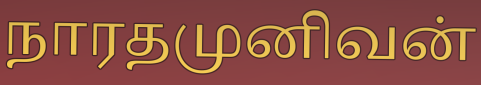
நாரதமுனிவன்